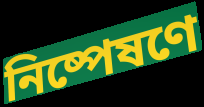
নিষ্পেষণে